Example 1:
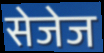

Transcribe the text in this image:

सेजेज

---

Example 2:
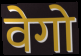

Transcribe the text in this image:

वेगो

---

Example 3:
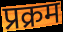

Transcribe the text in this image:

प्रक्रम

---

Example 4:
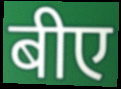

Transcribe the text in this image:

बीए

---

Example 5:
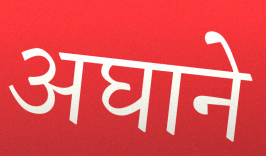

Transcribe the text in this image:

अघाने